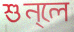
শুন্‌লে